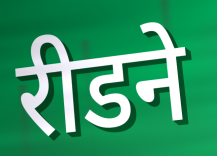
रीडने